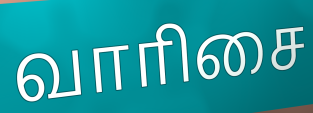
வாரிசை